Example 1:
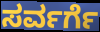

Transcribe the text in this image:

ಸರ್ವರ್ಗೆ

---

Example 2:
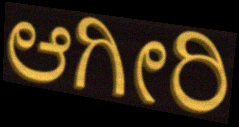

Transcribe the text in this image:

ಆಗೀರಿ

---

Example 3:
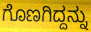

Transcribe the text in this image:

ಗೊಣಗಿದ್ದನ್ನು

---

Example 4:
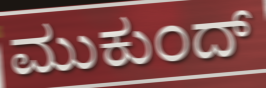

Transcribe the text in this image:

ಮುಕುಂದ್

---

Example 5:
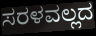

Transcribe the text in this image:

ಸರಳವಲ್ಲದ